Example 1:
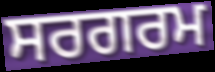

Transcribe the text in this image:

ਸਰਗਰਮ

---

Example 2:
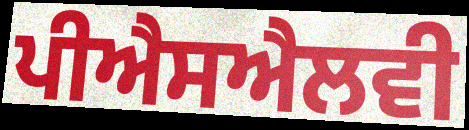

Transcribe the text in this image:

ਪੀਐਸਐਲਵੀ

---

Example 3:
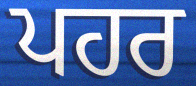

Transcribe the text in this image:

ਪਹਰ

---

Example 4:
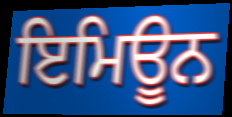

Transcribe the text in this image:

ਇਮਿਊਨ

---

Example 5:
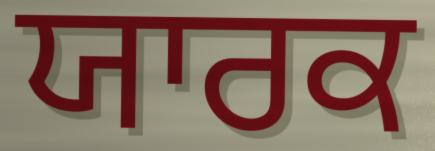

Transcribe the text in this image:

ਯਾਰਕ